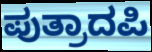
ಪುತ್ರಾದಪಿ